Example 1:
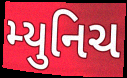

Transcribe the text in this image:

મ્યુનિચ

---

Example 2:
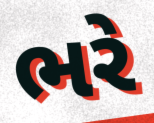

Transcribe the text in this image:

ભરે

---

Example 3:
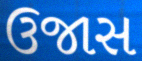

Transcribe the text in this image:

ઉજાસ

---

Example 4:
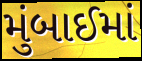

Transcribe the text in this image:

મુંબાઈમાં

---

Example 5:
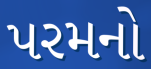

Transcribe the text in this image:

પરમનો